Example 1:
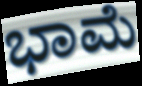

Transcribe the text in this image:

ಭಾಮೆ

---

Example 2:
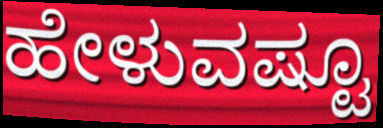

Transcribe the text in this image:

ಹೇಳುವಷ್ಟೂ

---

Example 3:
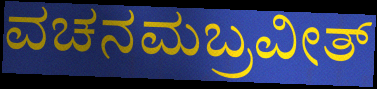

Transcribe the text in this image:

ವಚನಮಬ್ರವೀತ್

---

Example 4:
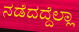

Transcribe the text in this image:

ನಡೆದದ್ದೆಲ್ಲಾ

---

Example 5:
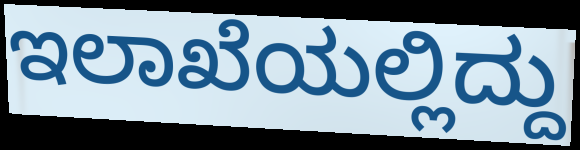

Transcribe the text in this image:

ಇಲಾಖೆಯಲ್ಲಿದ್ದು